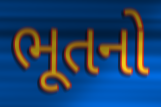
ભૂતનો